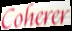
Coherer